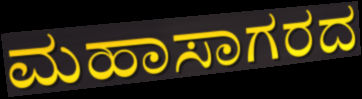
ಮಹಾಸಾಗರದ